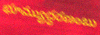
భూమ్యుద్ధరణంబు